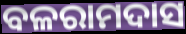
ବଳରାମଦାସ